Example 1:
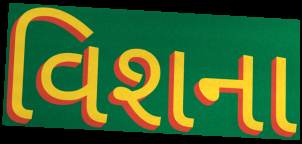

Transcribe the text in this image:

વિશના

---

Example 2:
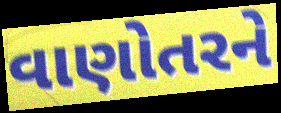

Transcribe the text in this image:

વાણોતરને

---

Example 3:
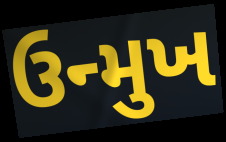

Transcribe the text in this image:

ઉન્મુખ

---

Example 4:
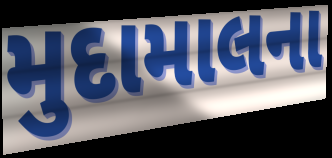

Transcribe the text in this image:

મુદામાલના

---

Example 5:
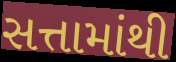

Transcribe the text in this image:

સત્તામાંથી